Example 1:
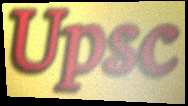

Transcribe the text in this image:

Upsc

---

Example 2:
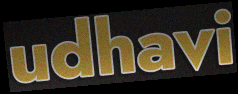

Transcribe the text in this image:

udhavi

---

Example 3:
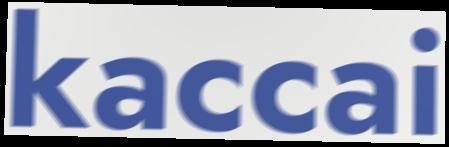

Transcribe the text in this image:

kaccai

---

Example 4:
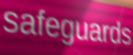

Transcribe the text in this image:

safeguards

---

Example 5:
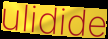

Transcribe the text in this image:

ulidide